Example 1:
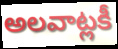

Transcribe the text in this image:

అలవాట్లకీ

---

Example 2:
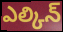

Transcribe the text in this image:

ఎల్కిన్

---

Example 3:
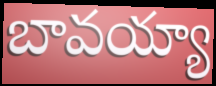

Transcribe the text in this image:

బావయ్యా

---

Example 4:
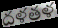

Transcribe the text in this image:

దళతళ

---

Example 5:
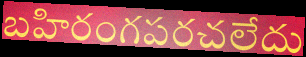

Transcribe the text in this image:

బహిరంగపరచలేదు